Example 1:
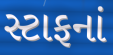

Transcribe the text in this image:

સ્ટાફનાં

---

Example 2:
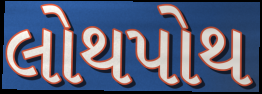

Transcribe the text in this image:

લોથપોથ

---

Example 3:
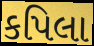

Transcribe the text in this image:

કપિલા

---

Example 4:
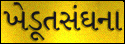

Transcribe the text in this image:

ખેડૂતસંઘના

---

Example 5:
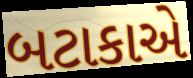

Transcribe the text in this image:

બટાકાએ